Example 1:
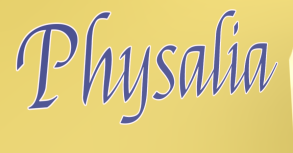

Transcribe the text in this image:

Physalia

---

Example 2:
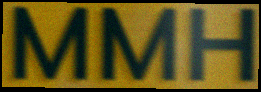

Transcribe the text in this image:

MMH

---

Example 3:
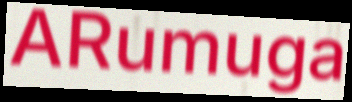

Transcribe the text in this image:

ARumuga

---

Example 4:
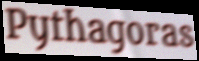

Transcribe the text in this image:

Pythagoras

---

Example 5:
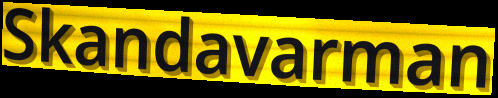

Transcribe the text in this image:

Skandavarman